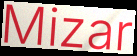
Mizar